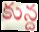
కున్ద